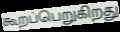
கூறப்பெறுகிறது